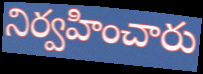
నిర్వహించారు